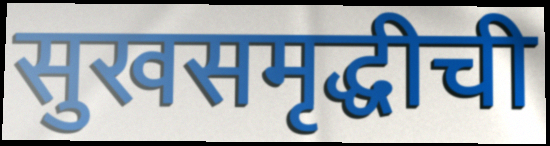
सुखसमृद्धीची